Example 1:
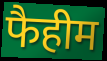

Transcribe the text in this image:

फैहीम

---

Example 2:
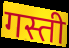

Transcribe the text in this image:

गस्ती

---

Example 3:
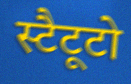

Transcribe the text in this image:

स्टैटूटो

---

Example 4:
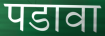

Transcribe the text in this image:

पडावा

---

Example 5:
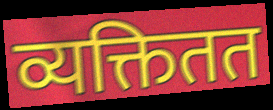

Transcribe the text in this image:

व्यक्तितत